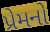
પ્રેમનો